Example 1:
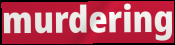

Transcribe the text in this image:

murdering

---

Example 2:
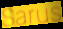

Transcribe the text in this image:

Sarus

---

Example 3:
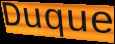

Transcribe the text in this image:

Duque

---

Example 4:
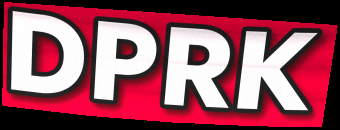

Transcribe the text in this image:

DPRK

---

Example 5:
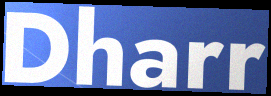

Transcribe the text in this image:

Dharr